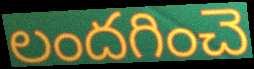
లందగించె